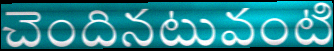
చెందినటువంటి